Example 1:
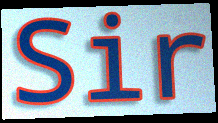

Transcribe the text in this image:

Sir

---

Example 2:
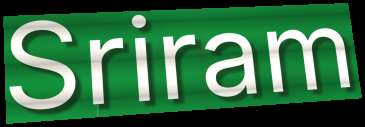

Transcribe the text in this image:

Sriram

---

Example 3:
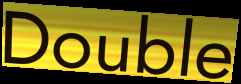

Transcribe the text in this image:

Double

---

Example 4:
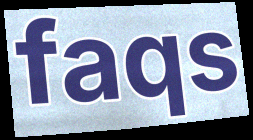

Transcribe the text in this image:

faqs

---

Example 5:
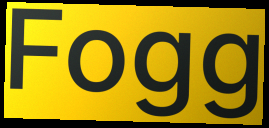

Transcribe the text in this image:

Fogg